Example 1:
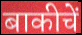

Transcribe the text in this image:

बाकीचें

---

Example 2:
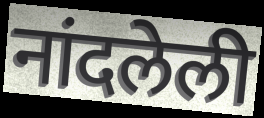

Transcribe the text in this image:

नांदलेली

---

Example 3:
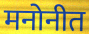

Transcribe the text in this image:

मनोनीत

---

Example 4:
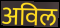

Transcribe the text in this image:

अविल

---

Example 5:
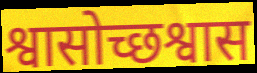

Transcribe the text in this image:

श्वासोच्छश्वास